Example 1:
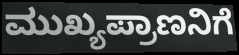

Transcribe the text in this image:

ಮುಖ್ಯಪ್ರಾಣನಿಗೆ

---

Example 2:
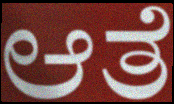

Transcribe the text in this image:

ಆತೆ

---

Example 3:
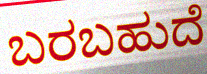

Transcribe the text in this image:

ಬರಬಹುದೆ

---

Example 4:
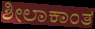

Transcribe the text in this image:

ಶೀಲಾಕಾಂತ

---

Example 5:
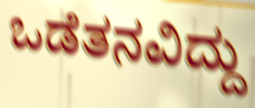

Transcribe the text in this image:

ಒಡೆತನವಿದ್ದು